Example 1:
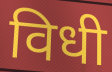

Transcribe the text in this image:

विधी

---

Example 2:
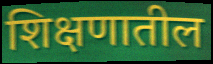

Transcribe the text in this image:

शिक्षणातील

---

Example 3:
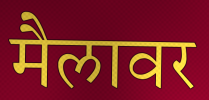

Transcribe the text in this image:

मैलावर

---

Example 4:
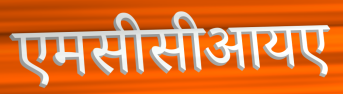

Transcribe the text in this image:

एमसीसीआयए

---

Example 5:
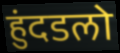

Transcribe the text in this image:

हुंदडलो